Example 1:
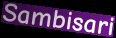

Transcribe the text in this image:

Sambisari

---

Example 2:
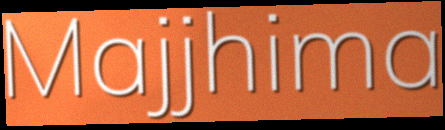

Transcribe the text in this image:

Majjhima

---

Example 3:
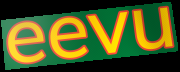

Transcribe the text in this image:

eevu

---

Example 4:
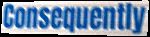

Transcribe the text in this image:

Consequently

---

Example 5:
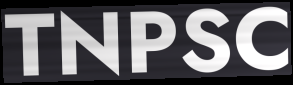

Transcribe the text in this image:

TNPSC